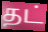
தட்